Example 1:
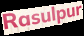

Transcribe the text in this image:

Rasulpur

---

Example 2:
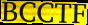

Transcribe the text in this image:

BCCTF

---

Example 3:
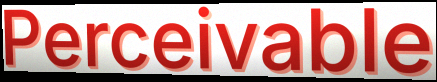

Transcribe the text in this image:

Perceivable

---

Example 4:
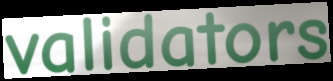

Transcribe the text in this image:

validators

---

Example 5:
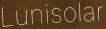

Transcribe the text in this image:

Lunisolar